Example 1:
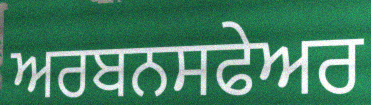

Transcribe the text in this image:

ਅਰਬਨਸਫੇਅਰ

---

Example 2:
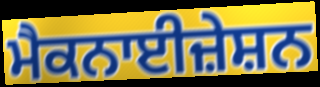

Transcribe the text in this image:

ਮੈਕਨਾਈਜ਼ੇਸ਼ਨ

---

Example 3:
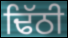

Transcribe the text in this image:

ਢਿੱਠੀ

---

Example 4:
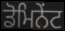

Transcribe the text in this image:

ਡੋਮਿਨੇਂਟ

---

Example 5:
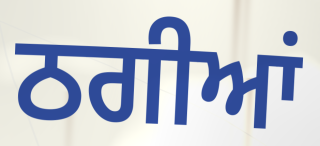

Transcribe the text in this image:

ਠਗੀਆਂ